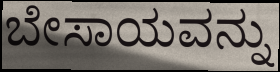
ಬೇಸಾಯವನ್ನು